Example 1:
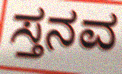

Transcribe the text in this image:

ಸ್ತನವ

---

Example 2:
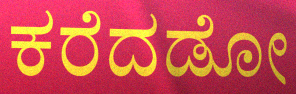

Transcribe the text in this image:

ಕರೆದಡೋ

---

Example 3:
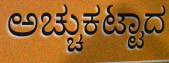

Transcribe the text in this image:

ಅಚ್ಚುಕಟ್ಟಾದ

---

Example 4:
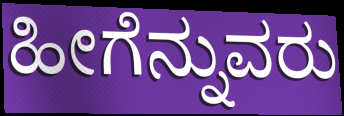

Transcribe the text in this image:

ಹೀಗೆನ್ನುವರು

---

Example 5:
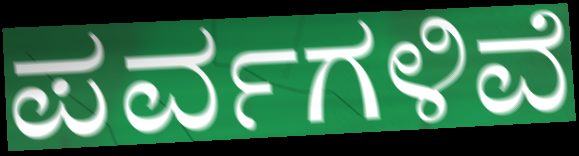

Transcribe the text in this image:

ಪರ್ವಗಳಿವೆ